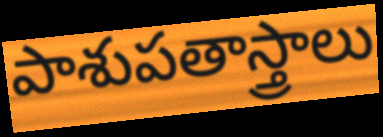
పాశుపతాస్త్రాలు